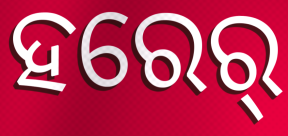
ହରେର୍